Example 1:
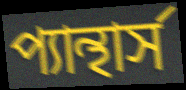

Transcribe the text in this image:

প্যান্থার্স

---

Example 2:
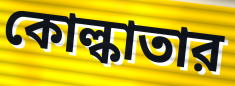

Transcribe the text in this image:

কোল্কাতার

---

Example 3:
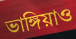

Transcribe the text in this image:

ভাঙ্গিয়াও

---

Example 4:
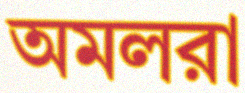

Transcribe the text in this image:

অমলরা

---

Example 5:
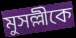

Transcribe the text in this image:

মুসল্লীকে